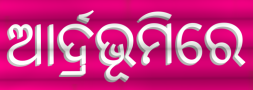
ଆର୍ଦ୍ରଭୂମିରେ